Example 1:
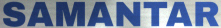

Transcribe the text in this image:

SAMANTAR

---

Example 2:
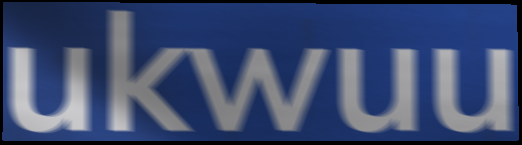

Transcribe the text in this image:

ukwuu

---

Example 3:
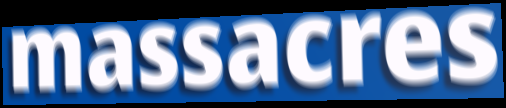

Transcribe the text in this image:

massacres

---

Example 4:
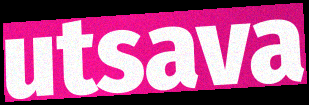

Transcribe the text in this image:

utsava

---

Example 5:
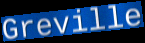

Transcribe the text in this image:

Greville